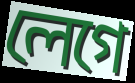
লেগে